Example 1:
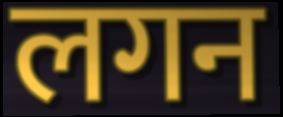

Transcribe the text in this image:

लगन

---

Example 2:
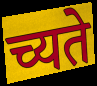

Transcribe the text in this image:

च्यते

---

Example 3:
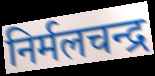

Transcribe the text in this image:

निर्मलचन्द्र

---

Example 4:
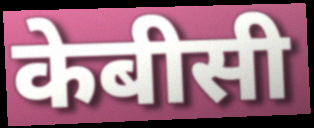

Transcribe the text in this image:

केबीसी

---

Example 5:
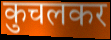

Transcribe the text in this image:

कुचलकर